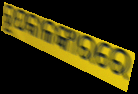
ରୂପକାଳଙ୍କାରରେ